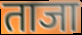
ताजा